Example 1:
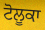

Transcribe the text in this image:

ਟੋਲੂਕਾ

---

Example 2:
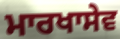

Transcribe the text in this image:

ਮਾਰਖਾਸੇਵ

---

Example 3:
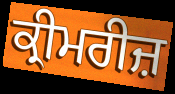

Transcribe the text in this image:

ਕ੍ਰੀਮਰੀਜ਼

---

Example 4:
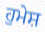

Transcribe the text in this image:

ਹੁਮੇਸ਼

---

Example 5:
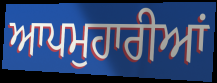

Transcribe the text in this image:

ਆਪਮੁਹਾਰੀਆਂ